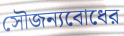
সৌজন্যবোধের